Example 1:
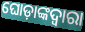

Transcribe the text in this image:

ଘୋଡ଼ାଙ୍କଦ୍ୱାରା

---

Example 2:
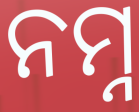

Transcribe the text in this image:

ନମ୍ନ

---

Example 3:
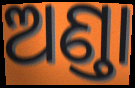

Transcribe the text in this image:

ଅଣ୍ଡା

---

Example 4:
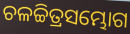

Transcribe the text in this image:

ଚଳଚ୍ଚିତ୍ରସମ୍ଭୋଗ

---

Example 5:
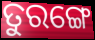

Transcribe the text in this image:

ତୁରଙ୍ଗେ